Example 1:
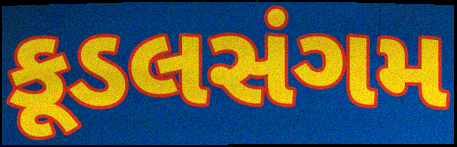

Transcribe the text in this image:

કૂડલસંગમ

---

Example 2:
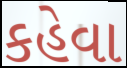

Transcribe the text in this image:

કહેવા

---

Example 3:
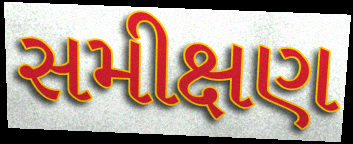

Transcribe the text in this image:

સમીક્ષણ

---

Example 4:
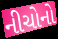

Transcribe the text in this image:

નીચોનો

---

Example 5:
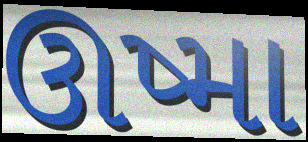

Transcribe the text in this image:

ઊષ્મા